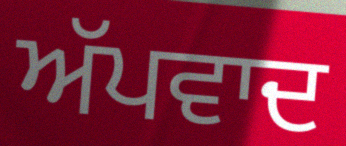
ਅੱਪਵਾਦ